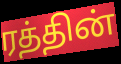
ரத்தின்